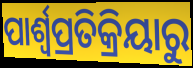
ପାର୍ଶ୍ୱପ୍ରତିକ୍ରିୟାରୁ